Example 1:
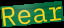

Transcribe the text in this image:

Rear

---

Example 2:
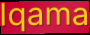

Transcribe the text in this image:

Iqama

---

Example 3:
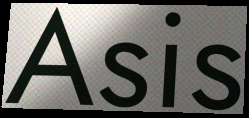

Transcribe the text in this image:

Asis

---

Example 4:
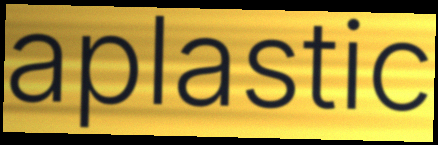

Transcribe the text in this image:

aplastic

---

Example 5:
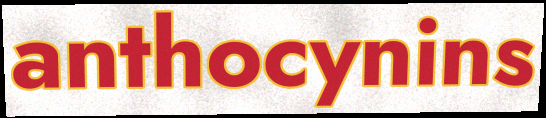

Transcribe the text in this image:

anthocynins